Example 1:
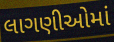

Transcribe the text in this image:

લાગણીઓમાં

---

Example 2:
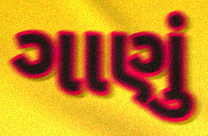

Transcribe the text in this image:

ગાણું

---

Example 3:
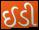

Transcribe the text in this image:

ઈડી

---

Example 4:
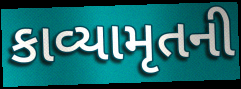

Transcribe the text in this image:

કાવ્યામૃતની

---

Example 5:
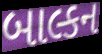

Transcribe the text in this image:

બાલ્કન